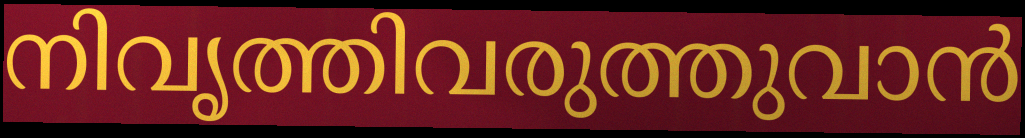
നിവൃത്തിവരുത്തുവാൻ